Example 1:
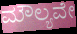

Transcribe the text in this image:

ಮೌಲ್ಯವೇ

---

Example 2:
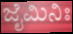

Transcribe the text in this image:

ಜೈಮಿನಿಃ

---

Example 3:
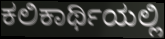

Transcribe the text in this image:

ಕಲಿಕಾರ್ಥಿಯಲ್ಲಿ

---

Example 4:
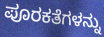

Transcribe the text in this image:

ಪೂರಕತೆಗಳನ್ನು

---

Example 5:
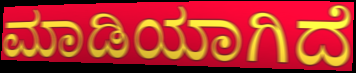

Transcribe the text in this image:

ಮಾಡಿಯಾಗಿದೆ